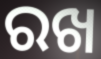
ରଖ